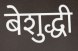
बेशुद्धी